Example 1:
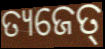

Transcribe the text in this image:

ତ୍ଯଜେତ୍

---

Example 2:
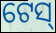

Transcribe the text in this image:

ଟେସ୍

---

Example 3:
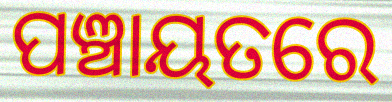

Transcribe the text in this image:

ପଞ୍ଚାୟତରେ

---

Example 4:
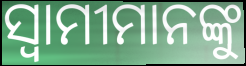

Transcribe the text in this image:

ସ୍ଵାମୀମାନଙ୍କୁ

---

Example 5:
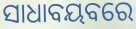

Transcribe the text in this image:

ସାଧାବୟବରେ